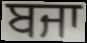
ਬਜਾ